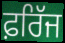
ਫ਼ਰਿੱਜ